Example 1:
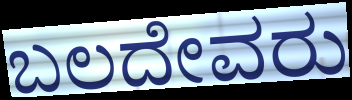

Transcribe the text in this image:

ಬಲದೇವರು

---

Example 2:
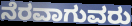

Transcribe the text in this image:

ನೆರವಾಗುವರು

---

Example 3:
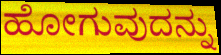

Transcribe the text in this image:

ಹೋಗುವುದನ್ನು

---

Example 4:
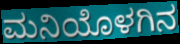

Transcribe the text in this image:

ಮನಿಯೊಳಗಿನ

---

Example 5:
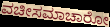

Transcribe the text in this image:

ವಚೀಸಮಾಚಾರೋ